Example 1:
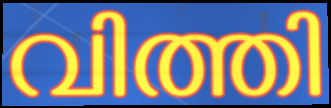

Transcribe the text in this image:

വിത്തി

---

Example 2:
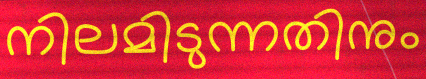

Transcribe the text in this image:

നിലമിടുന്നതിനും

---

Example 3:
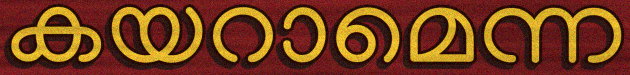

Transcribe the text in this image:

കയറാമെന്ന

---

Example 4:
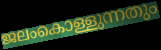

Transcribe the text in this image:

ജലംകൊള്ളുന്നതും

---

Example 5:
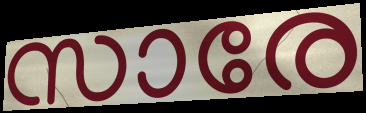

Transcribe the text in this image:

സാരേ